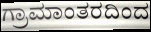
ಗ್ರಾಮಾಂತರದಿಂದ